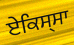
ਏਕਿਸ੍ਸਾ